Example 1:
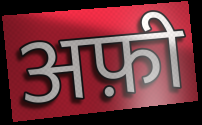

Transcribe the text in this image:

अफ़ी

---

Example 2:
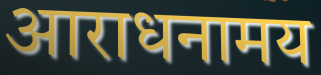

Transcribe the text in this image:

आराधनामय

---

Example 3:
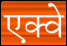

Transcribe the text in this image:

एक्वे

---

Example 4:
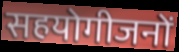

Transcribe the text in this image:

सहयोगीजनों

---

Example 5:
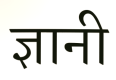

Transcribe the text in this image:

ज्ञानी